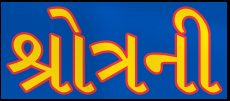
શ્રોત્રની